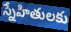
స్నేహితులకు